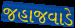
જહાજવાડે